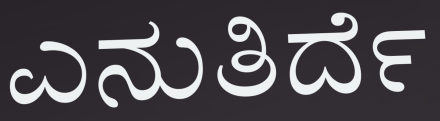
ಎನುತಿರ್ದೆ